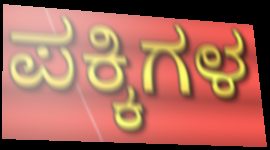
ಪಕ್ಕಿಗಳ